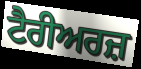
ਟੈਰੀਅਰਜ਼